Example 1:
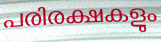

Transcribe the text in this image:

പരിരക്ഷകളും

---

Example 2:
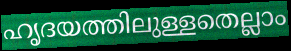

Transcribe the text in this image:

ഹൃദയത്തിലുള്ളതെല്ലാം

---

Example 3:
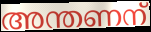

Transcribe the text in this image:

അന്തണന്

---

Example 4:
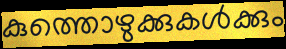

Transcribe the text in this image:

കുത്തൊഴുക്കുകൾക്കും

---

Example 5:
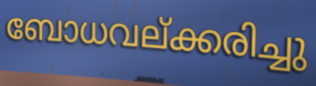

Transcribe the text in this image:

ബോധവല്ക്കരിച്ചു